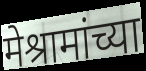
मेश्रामांच्या